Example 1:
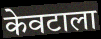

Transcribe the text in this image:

केवटाला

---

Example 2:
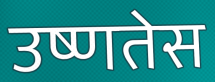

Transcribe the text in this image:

उष्णतेस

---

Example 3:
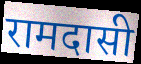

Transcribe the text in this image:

रामदासी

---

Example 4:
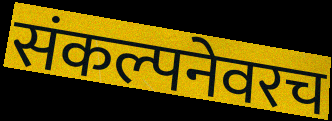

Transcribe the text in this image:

संकल्पनेवरच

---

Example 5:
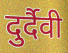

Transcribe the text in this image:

दुर्दैवी